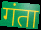
गंता